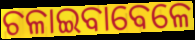
ଚଳାଇବାବେଳେ